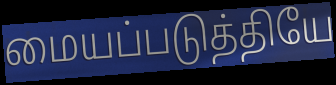
மையப்படுத்தியே